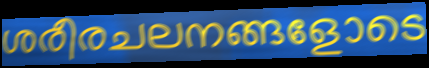
ശരീരചലനങ്ങളോടെ